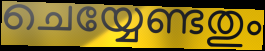
ചെയ്യേണ്ടതും